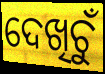
ଦେଖିଚୁଁ